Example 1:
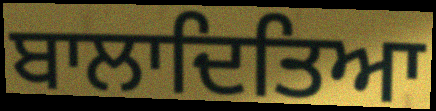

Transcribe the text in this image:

ਬਾਲਾਦਿਤਿਆ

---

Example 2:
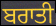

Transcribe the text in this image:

ਬਰਾਤੀ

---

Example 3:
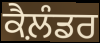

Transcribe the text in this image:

ਕੈਲ਼ੰਡਰ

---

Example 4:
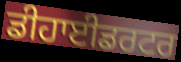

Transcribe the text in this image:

ਡੀਹਾਈਡਰਟਰ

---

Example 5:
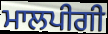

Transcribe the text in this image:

ਮਾਲਪੀਗੀ